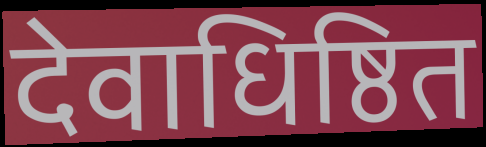
देवाधिष्ठित